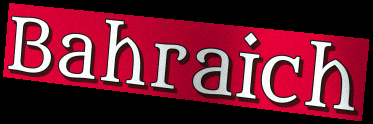
Bahraich